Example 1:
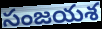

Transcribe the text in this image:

సంజయశ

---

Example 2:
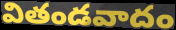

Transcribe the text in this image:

వితండవాదం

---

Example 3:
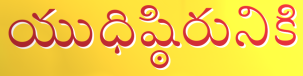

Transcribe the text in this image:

యుధిష్ఠిరునికి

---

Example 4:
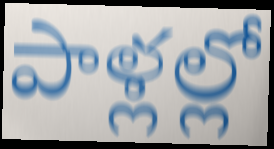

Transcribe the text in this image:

పాళ్లల్లో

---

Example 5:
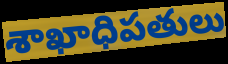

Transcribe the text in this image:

శాఖాధిపతులు